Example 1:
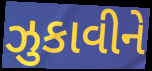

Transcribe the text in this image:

ઝુકાવીને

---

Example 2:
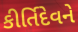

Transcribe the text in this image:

કીર્તિદેવને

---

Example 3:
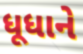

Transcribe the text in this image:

ધૂધાને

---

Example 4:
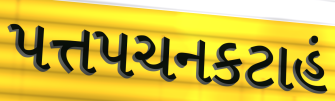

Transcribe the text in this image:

પત્તપચનકટાહં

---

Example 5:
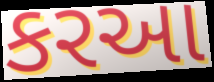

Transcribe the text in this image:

કરઆ